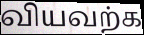
வியவற்க